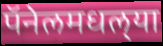
पॅनेलमधल्या